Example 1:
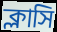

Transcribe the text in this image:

ক্লাসি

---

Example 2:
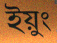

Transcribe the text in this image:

ইয়ুং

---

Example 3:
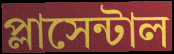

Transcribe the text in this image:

প্লাসেন্টাল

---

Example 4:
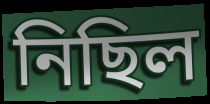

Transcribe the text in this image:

নিছিল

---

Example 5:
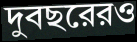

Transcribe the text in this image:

দুবছরেরও